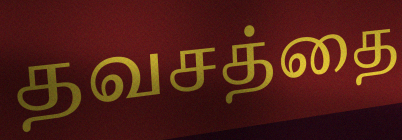
தவசத்தை